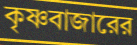
কৃষ্ণবাজারের